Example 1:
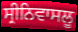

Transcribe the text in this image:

ਸ੍ਰੀਨਿਵਾਸਲੂ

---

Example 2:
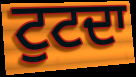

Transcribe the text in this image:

ਟੁਟਦਾ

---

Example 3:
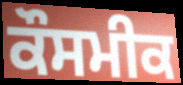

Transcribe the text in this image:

ਕੌਸਮੀਕ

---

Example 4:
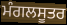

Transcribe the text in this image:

ਮੰਗਲਸੂਤਰ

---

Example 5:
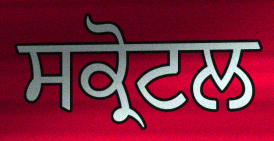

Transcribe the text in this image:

ਸਕ੍ਰੋਟਲ